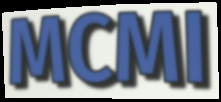
MCMI